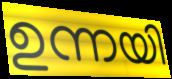
ഉന്നയി